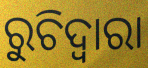
ରୁଚିଦ୍ୱାରା